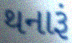
થનારૂં